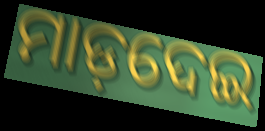
ମାଡ଼ଦେଇ